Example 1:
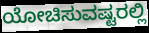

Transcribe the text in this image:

ಯೋಚಿಸುವಷ್ಟರಲ್ಲಿ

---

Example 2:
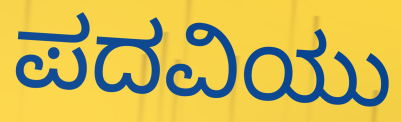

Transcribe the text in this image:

ಪದವಿಯು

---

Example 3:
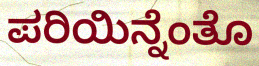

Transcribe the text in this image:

ಪರಿಯಿನ್ನೆಂತೊ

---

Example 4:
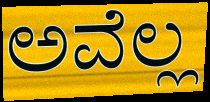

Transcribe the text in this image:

ಅವೆಲ್ಲ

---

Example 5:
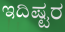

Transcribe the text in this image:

ಇದಿಷ್ಟರ